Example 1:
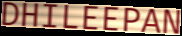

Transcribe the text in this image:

DHILEEPAN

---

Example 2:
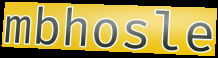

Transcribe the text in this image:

mbhosle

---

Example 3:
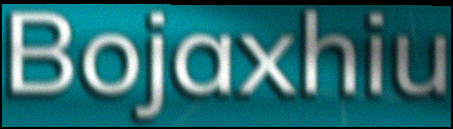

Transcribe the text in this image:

Bojaxhiu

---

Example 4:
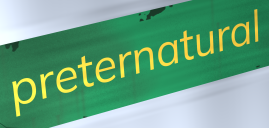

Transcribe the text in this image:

preternatural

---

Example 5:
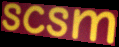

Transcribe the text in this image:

scsm